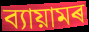
ব্যায়ামৰ